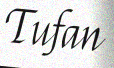
Tufan